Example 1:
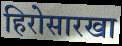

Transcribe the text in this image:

हिरोसारखा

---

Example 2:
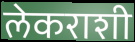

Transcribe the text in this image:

लेकराशी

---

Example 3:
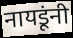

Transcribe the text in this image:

नायडूंनी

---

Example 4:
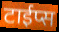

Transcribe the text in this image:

टाईप्स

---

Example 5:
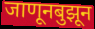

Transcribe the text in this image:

जाणूनबुझून